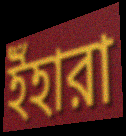
ইঁহারা